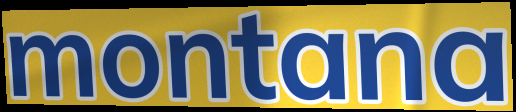
montana